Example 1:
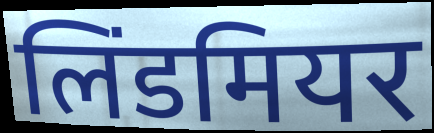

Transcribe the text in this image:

लिंडमियर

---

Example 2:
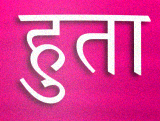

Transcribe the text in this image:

हुता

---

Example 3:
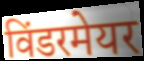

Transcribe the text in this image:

विंडरमेयर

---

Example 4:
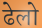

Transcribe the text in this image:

ढेलो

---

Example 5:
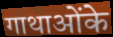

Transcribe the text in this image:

गाथाओंके